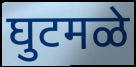
घुटमळे